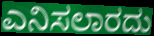
ಎನಿಸಲಾರದು